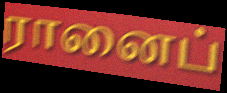
ரானைப்